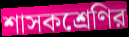
শাসকশ্রেণির